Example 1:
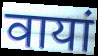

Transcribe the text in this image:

वायां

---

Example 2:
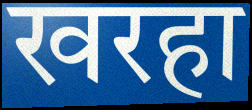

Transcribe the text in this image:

खरहा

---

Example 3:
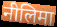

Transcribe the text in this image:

नीलिमा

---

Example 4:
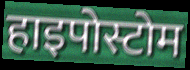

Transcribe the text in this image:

हाइपोस्टोम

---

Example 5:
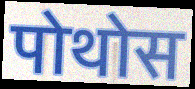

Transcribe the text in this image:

पोथोस